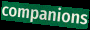
companions